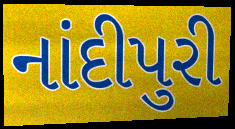
નાંદીપુરી